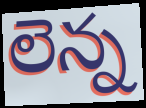
లెన్న